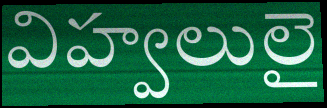
విహ్వలులై